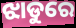
ଝାଡୁରେ